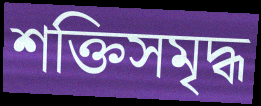
শক্তিসমৃদ্ধ